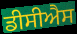
ਡੀਸੀਐਸ